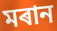
মৰান